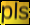
pls